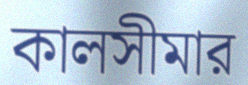
কালসীমার